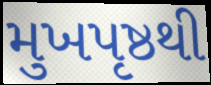
મુખપૃષ્ઠથી